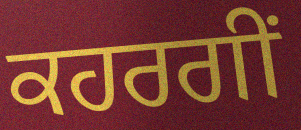
ਕਹਰਗੀਂ